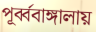
পূর্ব্ববাঙ্গালায়